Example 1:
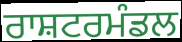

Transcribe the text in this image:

ਰਾਸ਼ਟਰਮੰਡਲ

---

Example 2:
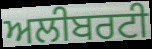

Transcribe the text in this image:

ਅਲੀਬਰਟੀ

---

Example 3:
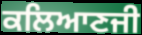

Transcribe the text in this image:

ਕਲਿਆਣਜੀ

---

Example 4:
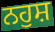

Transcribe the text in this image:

ਨਹੁਸ਼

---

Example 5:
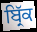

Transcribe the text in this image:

ਬ੍ਰਿੱਕ